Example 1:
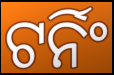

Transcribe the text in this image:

ଟର୍ନିଂ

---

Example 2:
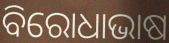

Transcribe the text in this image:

ବିରୋଧାଭାଷ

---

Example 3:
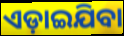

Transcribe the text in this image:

ଏଡ଼ାଇଯିବା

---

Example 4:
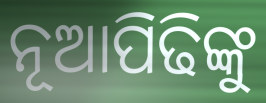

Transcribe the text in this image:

ନୂଆପିଢିଙ୍କୁ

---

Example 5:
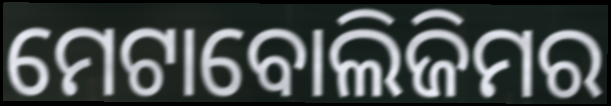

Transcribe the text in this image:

ମେଟାବୋଲିଜିମର